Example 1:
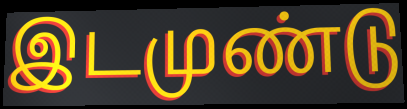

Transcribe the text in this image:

இடமுண்டு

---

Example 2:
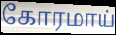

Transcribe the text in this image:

கோரமாய்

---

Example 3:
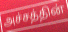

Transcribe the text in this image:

அச்சத்தின்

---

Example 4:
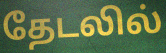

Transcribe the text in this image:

தேடலில்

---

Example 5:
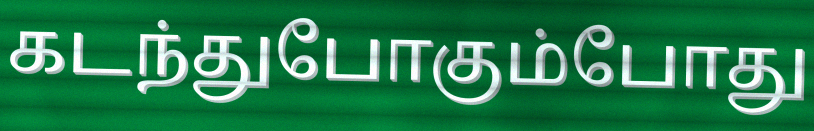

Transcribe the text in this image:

கடந்துபோகும்போது